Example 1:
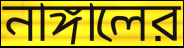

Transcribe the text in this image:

নাঙ্গালের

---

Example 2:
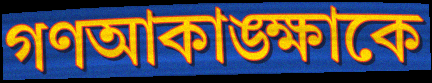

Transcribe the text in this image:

গণআকাঙ্ক্ষাকে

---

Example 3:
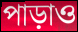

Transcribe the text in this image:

পাড়াও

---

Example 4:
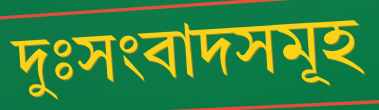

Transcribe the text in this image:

দুঃসংবাদসমূহ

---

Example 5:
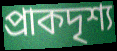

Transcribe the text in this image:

প্রাকদৃশ্য